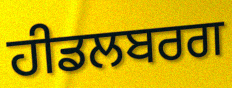
ਹੀਡਲਬਰਗ